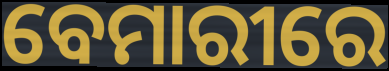
ବେମାରୀରେ